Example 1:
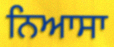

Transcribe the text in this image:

ਨਿਆਸਾ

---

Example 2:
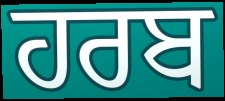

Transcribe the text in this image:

ਹਰਬ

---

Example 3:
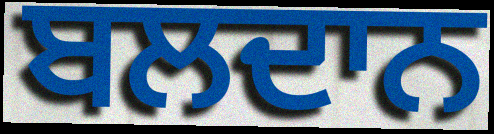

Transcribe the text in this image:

ਬਲਦਾਨ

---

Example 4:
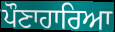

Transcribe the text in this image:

ਪੌਣਾਹਾਰਿਆ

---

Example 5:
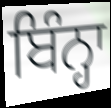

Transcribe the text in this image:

ਬਿੰਨ੍ਹਾ